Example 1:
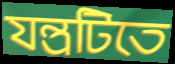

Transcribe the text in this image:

যন্ত্রটিতে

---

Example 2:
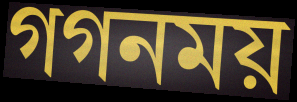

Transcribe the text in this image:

গগনময়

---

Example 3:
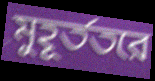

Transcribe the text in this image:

মুহূর্ততরে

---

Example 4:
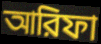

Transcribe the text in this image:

আরিফা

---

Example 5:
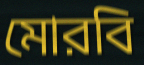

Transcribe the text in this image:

মোরবি